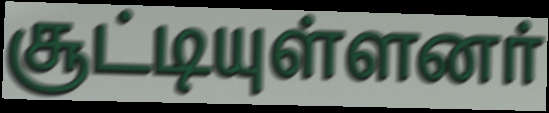
சூட்டியுள்ளனர்